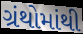
ગ્રંથોમાંથી